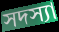
সদস্যা